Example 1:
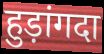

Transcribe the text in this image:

हुड़ांगदा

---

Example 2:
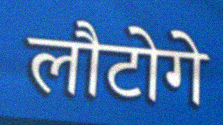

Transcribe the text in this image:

लौटोगे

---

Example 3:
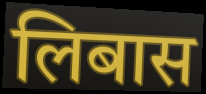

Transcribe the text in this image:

लिबास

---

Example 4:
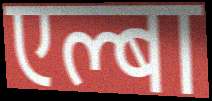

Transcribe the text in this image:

एल्बा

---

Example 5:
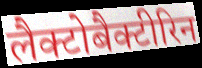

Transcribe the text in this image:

लैक्टोबैक्टीरिन